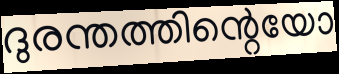
ദുരന്തത്തിന്റെയോ